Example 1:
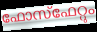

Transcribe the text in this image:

ഫോസ്ഫേറ്റും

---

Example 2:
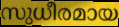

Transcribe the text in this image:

സുധീരമായ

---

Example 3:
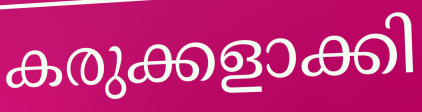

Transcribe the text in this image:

കരുക്കളാക്കി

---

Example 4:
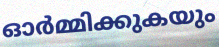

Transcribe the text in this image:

ഓർമ്മിക്കുകയും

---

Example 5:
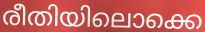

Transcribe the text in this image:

രീതിയിലൊക്കെ